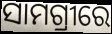
ସାମଗ୍ରୀରେ